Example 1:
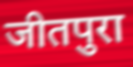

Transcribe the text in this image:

जीतपुरा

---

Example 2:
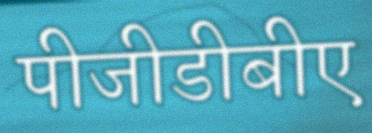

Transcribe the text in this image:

पीजीडीबीए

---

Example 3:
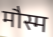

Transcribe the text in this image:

मौस्म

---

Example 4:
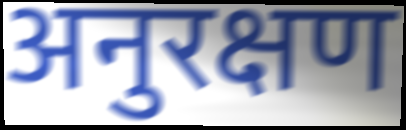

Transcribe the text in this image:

अनुरक्षण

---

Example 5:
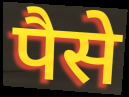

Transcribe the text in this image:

पैसे